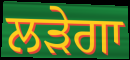
ਲੜੇਗਾ